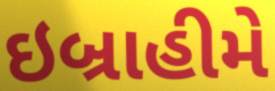
ઇબ્રાહીમે